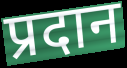
प्रदान